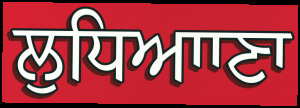
ਲੁਧਿਆਾਣਾ